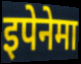
इपेनेमा